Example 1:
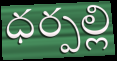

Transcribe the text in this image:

ధర్పల్లి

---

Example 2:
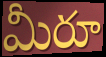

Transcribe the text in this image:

మీరూ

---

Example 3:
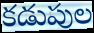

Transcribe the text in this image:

కడుపుల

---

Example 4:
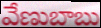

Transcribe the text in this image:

వేణుబాబు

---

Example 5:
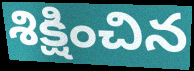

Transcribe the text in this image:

శిక్షించిన